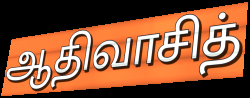
ஆதிவாசித்